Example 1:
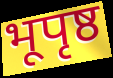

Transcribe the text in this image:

भूपृष्ठ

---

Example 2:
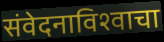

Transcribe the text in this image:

संवेदनाविश्वाचा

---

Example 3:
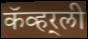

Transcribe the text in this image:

कॅव्हर्ली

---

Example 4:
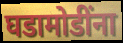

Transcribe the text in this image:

घडामोडींना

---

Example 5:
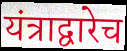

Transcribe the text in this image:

यंत्राद्वारेच